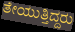
ತೇಯುತ್ತಿದ್ದರು